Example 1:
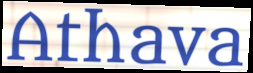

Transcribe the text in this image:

Athava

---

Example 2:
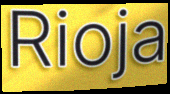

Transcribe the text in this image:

Rioja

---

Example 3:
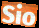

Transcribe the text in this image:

Sio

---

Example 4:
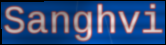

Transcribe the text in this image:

Sanghvi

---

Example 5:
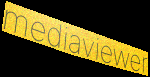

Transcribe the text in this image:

mediaviewer